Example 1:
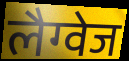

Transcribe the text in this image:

लैग्वेज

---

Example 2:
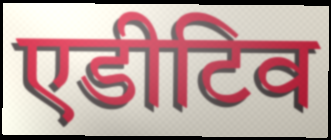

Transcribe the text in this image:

एडीटिव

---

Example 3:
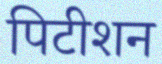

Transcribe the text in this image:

पिटीशन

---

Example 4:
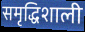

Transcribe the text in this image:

समृद्धिशाली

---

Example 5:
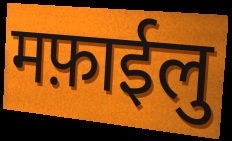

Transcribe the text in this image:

मफ़ाईलु